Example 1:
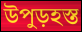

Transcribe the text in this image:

উপুড়হস্ত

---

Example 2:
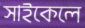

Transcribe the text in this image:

সাইকেলে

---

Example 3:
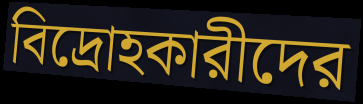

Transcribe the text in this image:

বিদ্রোহকারীদের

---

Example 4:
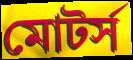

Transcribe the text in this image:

মোটর্স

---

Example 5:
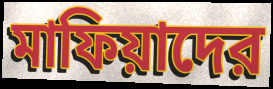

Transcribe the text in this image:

মাফিয়াদের